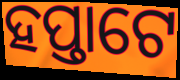
ହପ୍ତାଟେ